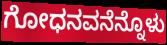
ಗೋಧನವನೆನ್ನೊಳು